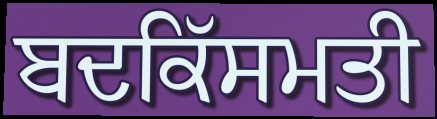
ਬਦਕਿੱਸਮਤੀ